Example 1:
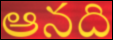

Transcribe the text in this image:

ఆనది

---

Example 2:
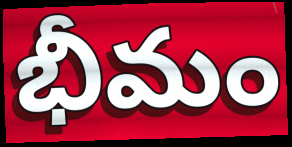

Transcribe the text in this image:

భీమం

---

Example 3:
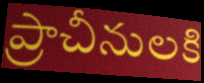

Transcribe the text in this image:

ప్రాచీనులకి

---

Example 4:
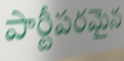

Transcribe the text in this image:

పార్టీపరమైన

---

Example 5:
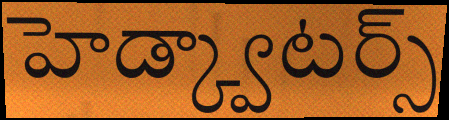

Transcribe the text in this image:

హెడ్క్వాటర్స్